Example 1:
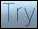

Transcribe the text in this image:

Try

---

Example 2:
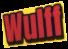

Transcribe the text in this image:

Wulff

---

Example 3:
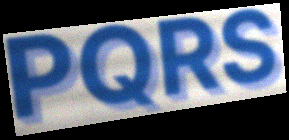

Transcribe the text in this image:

PQRS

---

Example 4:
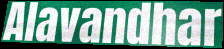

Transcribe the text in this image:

Alavandhar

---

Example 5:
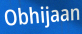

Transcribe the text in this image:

Obhijaan